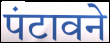
पंटावने